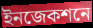
ইনজেকশনে